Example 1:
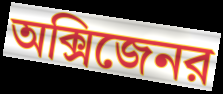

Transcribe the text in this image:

অক্সিজেনর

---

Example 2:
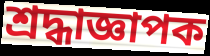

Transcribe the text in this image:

শ্রদ্ধাজ্ঞাপক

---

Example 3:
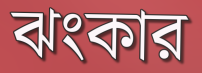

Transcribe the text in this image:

ঝংকার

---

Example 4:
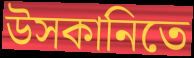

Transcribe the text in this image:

উসকানিতে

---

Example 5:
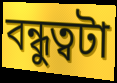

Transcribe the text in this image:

বন্ধুত্বটা